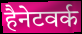
हैनेटवर्क